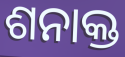
ଶନାକ୍ତ